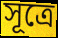
সূত্রে